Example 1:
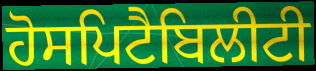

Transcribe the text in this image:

ਹੋਸਪਿਟੈਬਿਲੀਟੀ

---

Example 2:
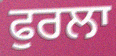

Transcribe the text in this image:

ਫੁਰਲਾ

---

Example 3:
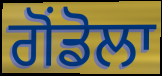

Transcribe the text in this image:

ਗੋਂਡੋਲਾ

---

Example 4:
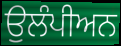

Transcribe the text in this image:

ਉੁਲੰਪੀਅਨ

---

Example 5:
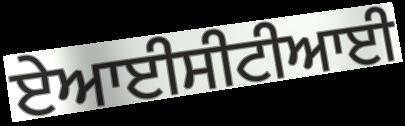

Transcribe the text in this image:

ਏਆਈਸੀਟੀਆਈ